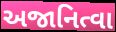
અજાનિત્વા